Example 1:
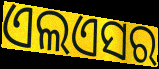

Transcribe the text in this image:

ଏଲଏସର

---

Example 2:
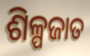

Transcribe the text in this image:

ଶିଳ୍ପଜାତ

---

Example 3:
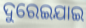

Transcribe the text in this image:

ଦୁରେଇଯାଇ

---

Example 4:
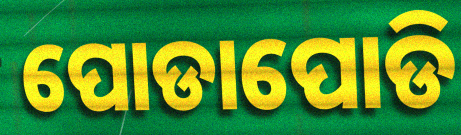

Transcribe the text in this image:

ପୋଡାପୋଡି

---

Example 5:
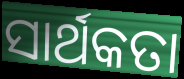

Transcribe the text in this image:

ସାର୍ଥକତା